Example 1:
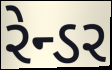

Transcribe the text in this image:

રેન્ડર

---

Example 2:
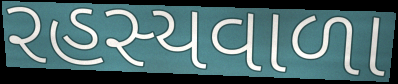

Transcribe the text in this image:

રહસ્યવાળા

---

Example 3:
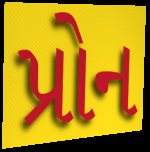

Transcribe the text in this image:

પ્રોન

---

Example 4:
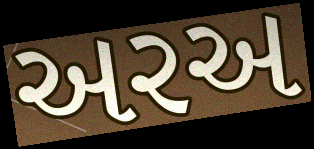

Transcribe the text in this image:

અરઅ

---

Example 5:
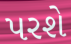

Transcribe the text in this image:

પરશે